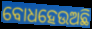
ବୋଧହେଉଅଛି